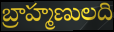
బ్రాహ్మణులది